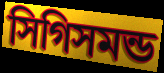
সিগিসমন্ড